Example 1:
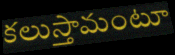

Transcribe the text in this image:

కలుస్తామంటూ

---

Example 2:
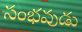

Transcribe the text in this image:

సంభవుడు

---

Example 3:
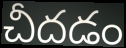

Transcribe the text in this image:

చీదడం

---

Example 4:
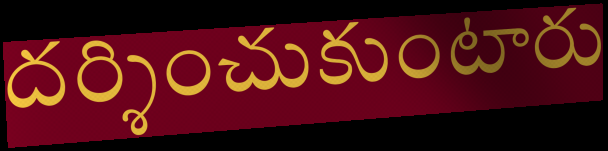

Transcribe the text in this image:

దర్శించుకుంటారు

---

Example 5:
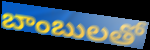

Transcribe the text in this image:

బాంబులతో